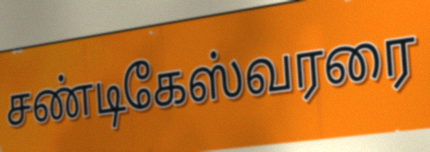
சண்டிகேஸ்வரரை